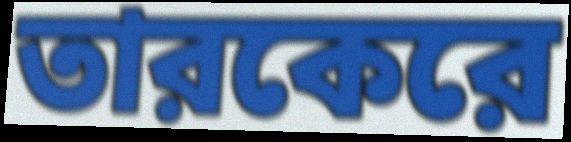
তারকেরে